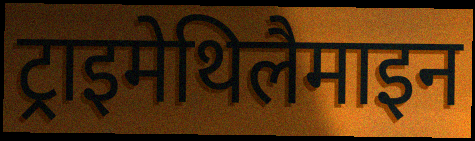
ट्राइमेथिलैमाइन